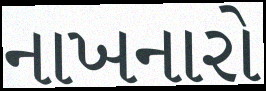
નાખનારો